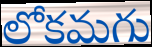
లోకమగు